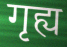
गृह्य